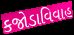
કજોડાવિવાહ